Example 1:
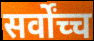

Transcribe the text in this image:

सर्वोंच्च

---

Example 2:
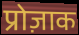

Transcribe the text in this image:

प्रोज़ाक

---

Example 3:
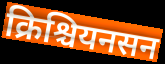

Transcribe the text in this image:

क्रिश्चियनसन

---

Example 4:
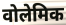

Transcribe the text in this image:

वोलेमिक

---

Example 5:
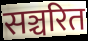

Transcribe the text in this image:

सञ्चरित